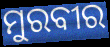
ମୁରବୀର